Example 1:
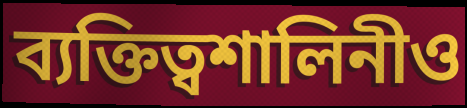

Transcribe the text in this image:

ব্যক্তিত্বশালিনীও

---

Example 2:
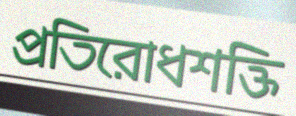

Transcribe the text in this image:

প্রতিরোধশক্তি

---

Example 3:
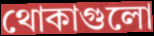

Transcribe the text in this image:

থোকাগুলো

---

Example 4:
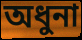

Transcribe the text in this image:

অধুনা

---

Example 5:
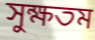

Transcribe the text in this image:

সুক্ষতম